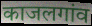
काजलगांव